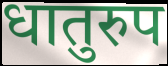
धातुरुप